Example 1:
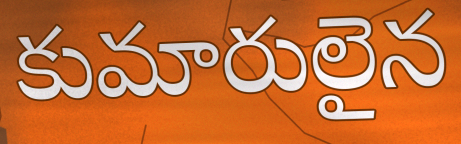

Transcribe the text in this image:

కుమారులైన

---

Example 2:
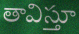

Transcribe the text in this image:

తావిస్తూ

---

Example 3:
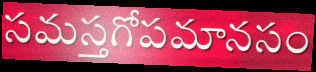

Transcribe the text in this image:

సమస్తగోపమానసం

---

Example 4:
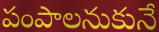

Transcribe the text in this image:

పంపాలనుకునే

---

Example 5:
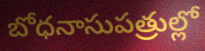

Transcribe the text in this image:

బోధనాసుపత్రుల్లో